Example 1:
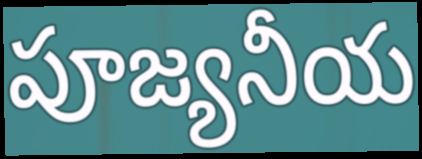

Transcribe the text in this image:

పూజ్యనీయ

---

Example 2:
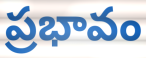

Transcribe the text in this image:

ప్రభావం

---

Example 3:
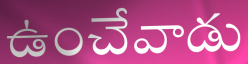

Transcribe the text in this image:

ఉంచేవాడు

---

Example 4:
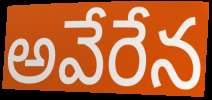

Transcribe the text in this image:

అవేరేన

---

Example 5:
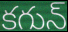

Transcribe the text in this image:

కగున్